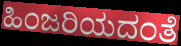
ಹಿಂಜರಿಯದಂತೆ